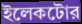
ইলেকটোর